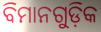
ବିମାନଗୁଡ଼ିକ